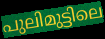
പുലിമുട്ടിലെ